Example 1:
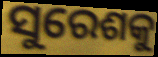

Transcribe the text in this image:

ସୁରେଶକୁ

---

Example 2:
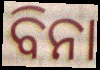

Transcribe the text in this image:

ବିନା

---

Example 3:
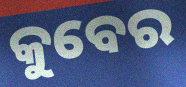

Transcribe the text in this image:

କୁବେର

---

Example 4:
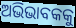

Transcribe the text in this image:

ଅଭିଭାବକକୁ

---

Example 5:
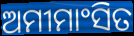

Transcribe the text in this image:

ଅମୀମାଂସିତ